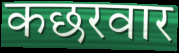
कछरवार